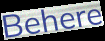
Behere